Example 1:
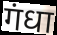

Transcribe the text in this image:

गंधा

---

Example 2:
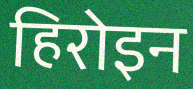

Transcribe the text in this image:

हिरोइन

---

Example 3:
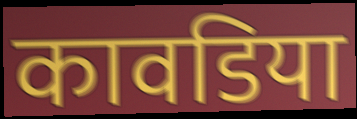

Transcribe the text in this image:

कावडिया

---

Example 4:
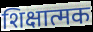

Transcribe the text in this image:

शिक्षात्मक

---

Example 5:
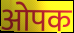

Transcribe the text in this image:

ओपक